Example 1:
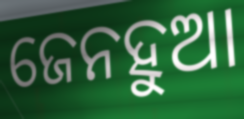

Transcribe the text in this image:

ଜେନହୁଆ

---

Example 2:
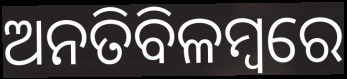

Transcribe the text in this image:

ଅନତିବିଳମ୍ବରେ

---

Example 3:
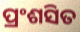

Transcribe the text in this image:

ପ୍ରଂଶସିତ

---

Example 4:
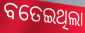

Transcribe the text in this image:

ବତେଇଥିଲା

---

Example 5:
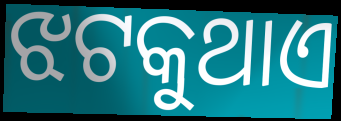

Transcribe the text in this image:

ଝଟକୁଥାଏ